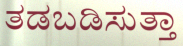
ತಡಬಡಿಸುತ್ತಾ